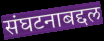
संघटनाबद्दल